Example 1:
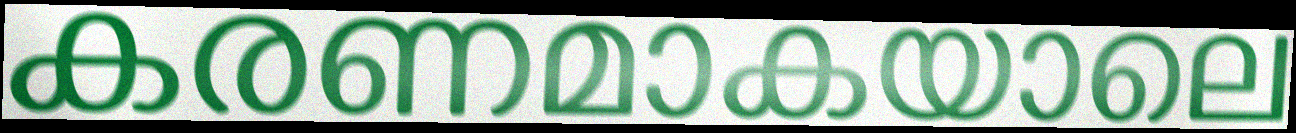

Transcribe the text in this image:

കരണമാകയാലെ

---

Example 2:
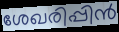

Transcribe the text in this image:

ശേഖരിപ്പിൻ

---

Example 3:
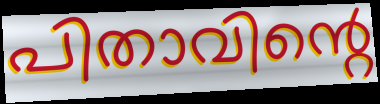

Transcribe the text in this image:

പിതാവിന്റെ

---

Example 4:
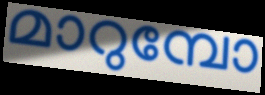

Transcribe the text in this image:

മാറുമ്പോ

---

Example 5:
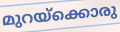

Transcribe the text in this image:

മുറയ്ക്കൊരു